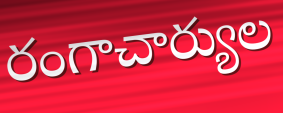
రంగాచార్యుల